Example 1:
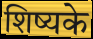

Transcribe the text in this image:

शिष्यके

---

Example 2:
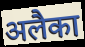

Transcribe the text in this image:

अलैका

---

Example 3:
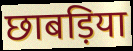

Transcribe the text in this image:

छाबड़िया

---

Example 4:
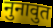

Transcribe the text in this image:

नुनावुत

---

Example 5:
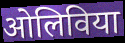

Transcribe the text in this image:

ओलिविया